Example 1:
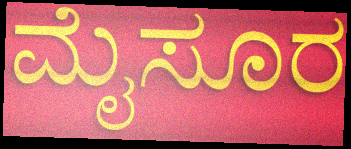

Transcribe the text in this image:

ಮೈಸೂರ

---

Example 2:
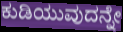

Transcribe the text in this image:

ಕುಡಿಯುವುದನ್ನೇ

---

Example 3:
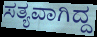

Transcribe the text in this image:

ಸತ್ಯವಾಗಿದ್ದ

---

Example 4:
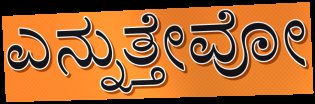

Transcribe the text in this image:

ಎನ್ನುತ್ತೇವೋ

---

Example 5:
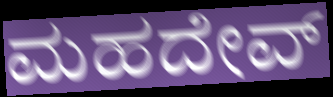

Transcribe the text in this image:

ಮಹದೇವ್